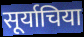
सूर्याचिया